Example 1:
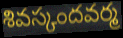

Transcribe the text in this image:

శివస్కందవర్మ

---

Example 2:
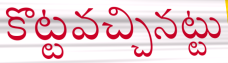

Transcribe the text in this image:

కొట్టవచ్చినట్టు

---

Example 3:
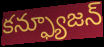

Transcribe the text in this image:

కన్ఫ్యూజన్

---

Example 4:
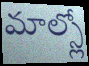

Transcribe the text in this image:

మాల్స్లో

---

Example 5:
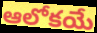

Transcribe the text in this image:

ఆలోకయే